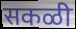
सकळी